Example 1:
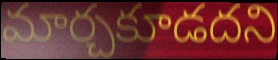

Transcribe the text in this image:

మార్చకూడదని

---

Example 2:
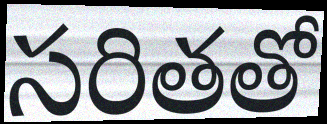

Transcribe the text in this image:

సరితతో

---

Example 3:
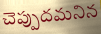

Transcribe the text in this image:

చెప్పుదమనిన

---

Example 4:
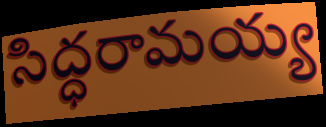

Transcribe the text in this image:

సిద్ధరామయ్య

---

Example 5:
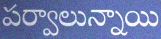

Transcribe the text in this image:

పర్వాలున్నాయి